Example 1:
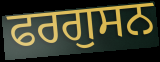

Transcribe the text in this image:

ਫਰਗੁਸਨ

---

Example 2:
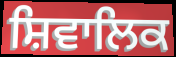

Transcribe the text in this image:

ਸ਼ਿਵਾਲਿਕ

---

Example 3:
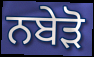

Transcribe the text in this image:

ਨਬੇੜੋ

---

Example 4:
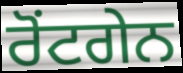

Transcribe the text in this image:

ਰੋਂਟਗੇਨ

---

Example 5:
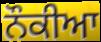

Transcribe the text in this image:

ਨੌਕੀਆ